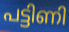
പട്ടിണി